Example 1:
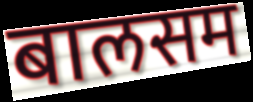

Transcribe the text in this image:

बालसम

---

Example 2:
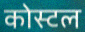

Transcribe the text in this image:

कोस्टल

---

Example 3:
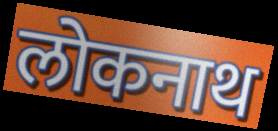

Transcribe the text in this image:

लोकनाथ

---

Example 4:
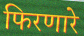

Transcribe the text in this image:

फिरणारे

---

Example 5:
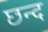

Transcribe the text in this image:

छन्द